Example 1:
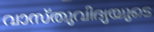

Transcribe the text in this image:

വാസ്തുവിദ്യയുടെ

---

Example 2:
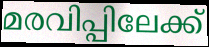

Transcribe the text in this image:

മരവിപ്പിലേക്ക്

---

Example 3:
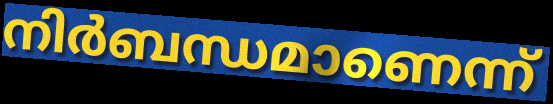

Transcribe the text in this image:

നിർബന്ധമാണെന്ന്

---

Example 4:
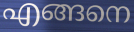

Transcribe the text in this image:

എങ്ങനെ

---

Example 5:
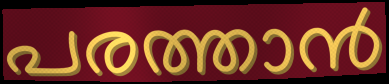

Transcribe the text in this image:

പരത്താൻ